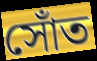
সোঁত